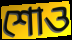
শোও